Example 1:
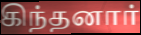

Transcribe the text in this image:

கிந்தனார்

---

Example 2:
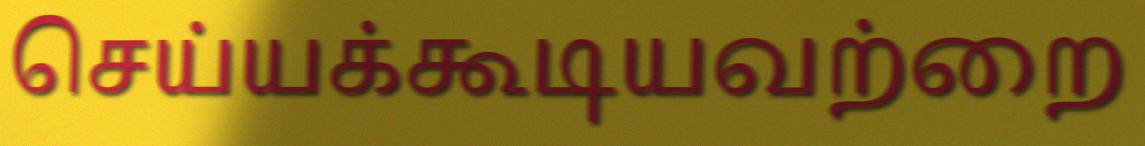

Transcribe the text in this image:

செய்யக்கூடியவற்றை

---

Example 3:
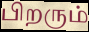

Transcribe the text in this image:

பிறரும்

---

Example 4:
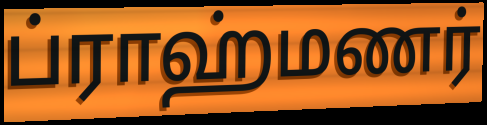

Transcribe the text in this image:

ப்ராஹ்மணர்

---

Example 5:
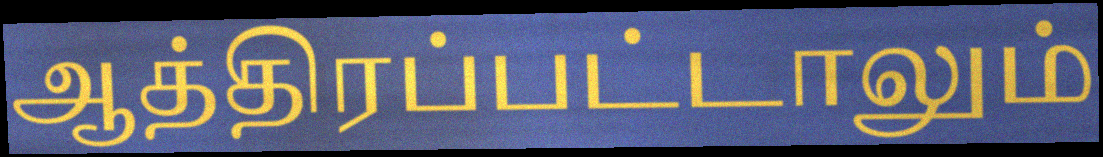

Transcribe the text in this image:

ஆத்திரப்பட்டாலும்